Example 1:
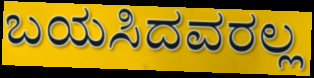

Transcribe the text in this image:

ಬಯಸಿದವರಲ್ಲ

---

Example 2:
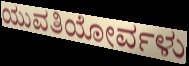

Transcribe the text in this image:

ಯುವತಿಯೋರ್ವಳು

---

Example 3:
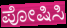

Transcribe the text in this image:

ಪೋಷಿಸಿ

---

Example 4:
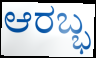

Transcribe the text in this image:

ಆರಬ್ಭ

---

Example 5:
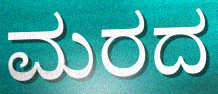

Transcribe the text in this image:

ಮರದ